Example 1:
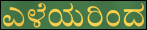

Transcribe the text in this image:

ಎಳೆಯರಿಂದ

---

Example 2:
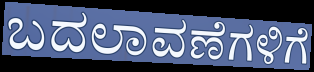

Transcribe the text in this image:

ಬದಲಾವಣೆಗಳಿಗೆ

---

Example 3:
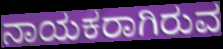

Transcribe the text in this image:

ನಾಯಕರಾಗಿರುವ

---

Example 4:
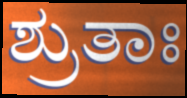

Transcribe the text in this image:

ಶ್ರುತಾಃ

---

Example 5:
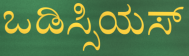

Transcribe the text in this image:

ಒಡಿಸ್ಸಿಯಸ್